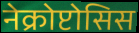
नेक्रोप्टोसिस